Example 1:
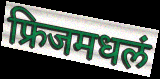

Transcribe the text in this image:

फ्रिजमधलं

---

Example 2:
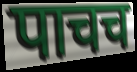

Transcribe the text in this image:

पाचच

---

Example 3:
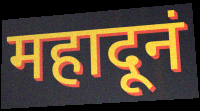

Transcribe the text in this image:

महादूनं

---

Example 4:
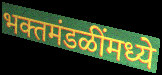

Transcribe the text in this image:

भक्तमंडळींमध्ये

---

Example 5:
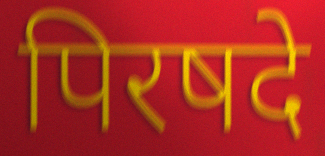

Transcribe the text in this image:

पिरषदे